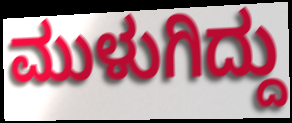
ಮುಳುಗಿದ್ದು